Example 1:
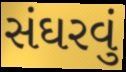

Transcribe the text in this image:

સંઘરવું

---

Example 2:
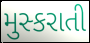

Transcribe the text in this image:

મુસ્કરાતી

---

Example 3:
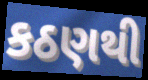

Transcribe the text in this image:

કઠણથી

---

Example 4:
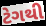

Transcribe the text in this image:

ટેગથી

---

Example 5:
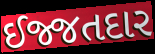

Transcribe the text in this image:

ઈજ્જતદાર